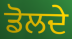
ਡੋਲਦੇ